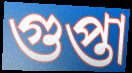
গুপ্তা